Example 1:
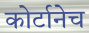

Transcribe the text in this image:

कोर्टानेच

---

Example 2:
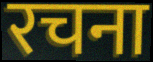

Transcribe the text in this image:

रचना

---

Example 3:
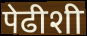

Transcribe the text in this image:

पेढीशी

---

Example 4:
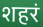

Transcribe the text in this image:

शहरं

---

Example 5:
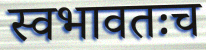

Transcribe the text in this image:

स्वभावतःच